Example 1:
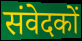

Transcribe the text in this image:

संवेदकों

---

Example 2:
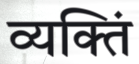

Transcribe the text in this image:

व्यक्तिं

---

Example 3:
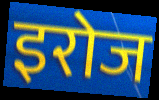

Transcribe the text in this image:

इरोज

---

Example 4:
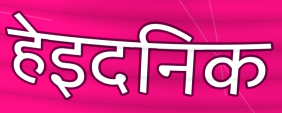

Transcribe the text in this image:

हेइदनिक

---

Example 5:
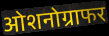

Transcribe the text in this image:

ओशनोग्राफर